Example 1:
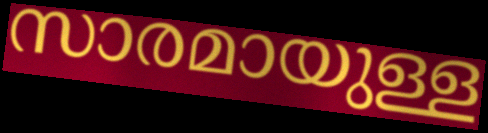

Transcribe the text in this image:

സാരമായുള്ള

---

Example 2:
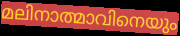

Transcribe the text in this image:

മലിനാത്മാവിനെയും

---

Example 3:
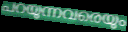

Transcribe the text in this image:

പറയുന്നവരെയും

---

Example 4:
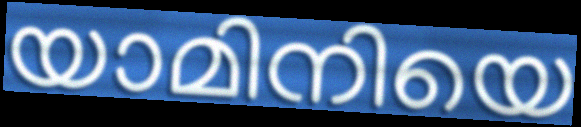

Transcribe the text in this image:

യാമിനിയെ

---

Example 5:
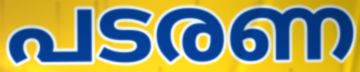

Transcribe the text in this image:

പടരണ